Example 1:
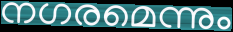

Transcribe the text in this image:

നഗരമെന്നും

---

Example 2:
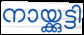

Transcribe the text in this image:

നായ്ക്കുട്ടി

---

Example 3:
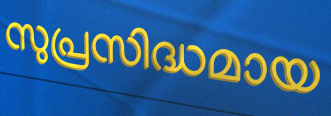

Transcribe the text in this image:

സുപ്രസിദ്ധമായ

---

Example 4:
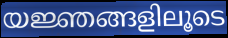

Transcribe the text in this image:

യജ്ഞങ്ങളിലൂടെ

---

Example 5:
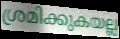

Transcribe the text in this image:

ശ്രമിക്കുകയല്ല